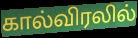
கால்விரலில்